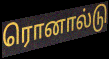
ரொனால்டு